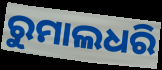
ରୁମାଲଧରି